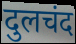
दुलचंद